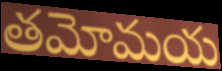
తమోమయ